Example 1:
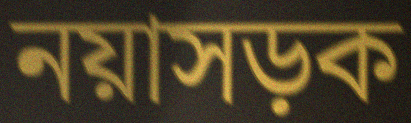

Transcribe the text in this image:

নয়াসড়ক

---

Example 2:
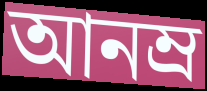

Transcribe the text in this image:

আনম্র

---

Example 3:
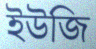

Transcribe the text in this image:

ইউজি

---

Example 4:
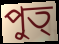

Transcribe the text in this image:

পুত্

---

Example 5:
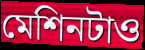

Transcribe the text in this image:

মেশিনটাও